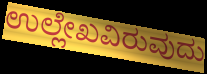
ಉಲ್ಲೇಖವಿರುವುದು